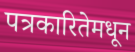
पत्रकारितेमधून